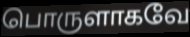
பொருளாகவே